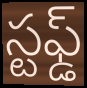
స్టఫ్డ్